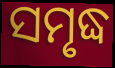
ସମୃଦ୍ଧ